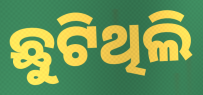
ଛୁଟିଥିଲି